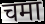
चमा